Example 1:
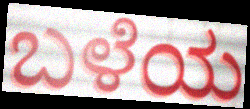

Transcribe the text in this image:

ಬಳೆಯ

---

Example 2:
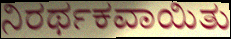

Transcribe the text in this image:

ನಿರರ್ಥಕವಾಯಿತು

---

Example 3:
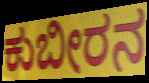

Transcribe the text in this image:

ಕುಬೀರನ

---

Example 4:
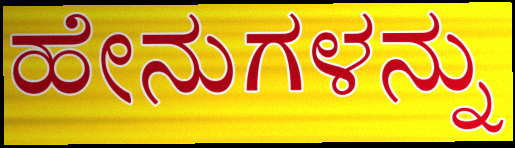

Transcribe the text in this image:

ಹೇನುಗಳನ್ನು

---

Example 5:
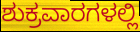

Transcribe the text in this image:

ಶುಕ್ರವಾರಗಳಲ್ಲಿ